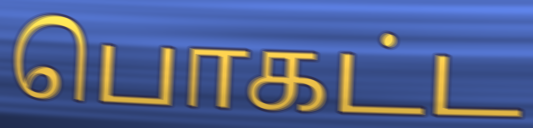
பொகட்ட